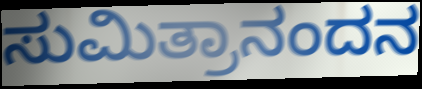
ಸುಮಿತ್ರಾನಂದನ